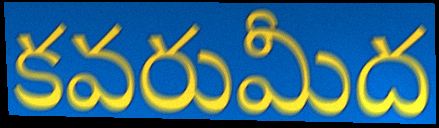
కవరుమీద